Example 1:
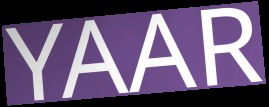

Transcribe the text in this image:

YAAR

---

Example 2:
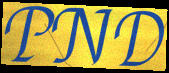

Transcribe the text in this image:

PND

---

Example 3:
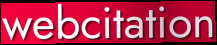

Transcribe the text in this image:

webcitation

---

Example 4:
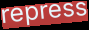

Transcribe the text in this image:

repress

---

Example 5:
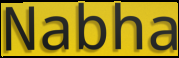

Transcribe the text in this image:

Nabha